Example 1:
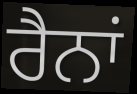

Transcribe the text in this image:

ਰੈਨਾਂ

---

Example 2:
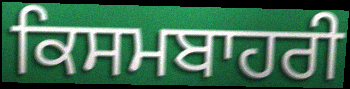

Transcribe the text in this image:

ਕਿਸਮਬਾਹਰੀ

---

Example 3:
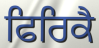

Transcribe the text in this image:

ਫਿਰਿਕੈ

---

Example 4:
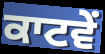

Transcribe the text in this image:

ਕਾਟਵੇਂ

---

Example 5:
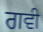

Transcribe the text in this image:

ਗਵੀ